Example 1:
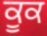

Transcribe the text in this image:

ਕੂਕ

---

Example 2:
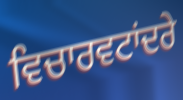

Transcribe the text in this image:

ਵਿਚਾਰਵਟਾਂਦਰੇ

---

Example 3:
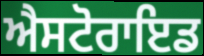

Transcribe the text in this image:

ਐਸਟੋਰਾਇਡ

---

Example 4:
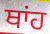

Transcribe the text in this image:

ਥਾਂਹ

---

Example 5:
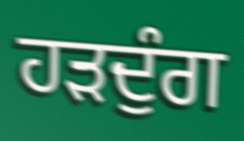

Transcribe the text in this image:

ਹੜਦੁੰਗ